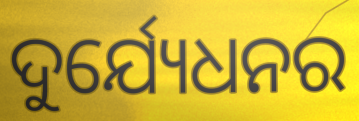
ଦୁର୍ଯ୍ୟେଧନର